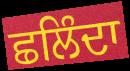
ਛਲਿੰਦਾ